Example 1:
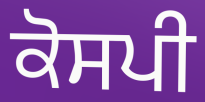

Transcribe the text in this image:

ਕੋਸਪੀ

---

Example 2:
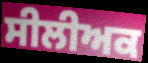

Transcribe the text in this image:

ਸੀਲੀਅਕ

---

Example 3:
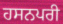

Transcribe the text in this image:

ਹਸਨਪਰੀ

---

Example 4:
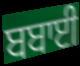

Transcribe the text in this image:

ਬਬਾਈ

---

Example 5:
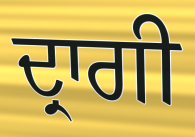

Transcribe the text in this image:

ਦ੍ਰਾਗੀ